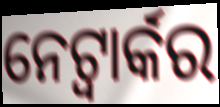
ନେଟ୍ୱାର୍କର